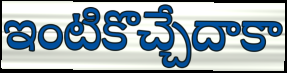
ఇంటికొచ్చేదాకా